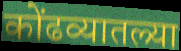
कोंढव्यातल्या